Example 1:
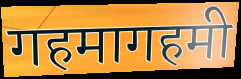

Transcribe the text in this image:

गहमागहमी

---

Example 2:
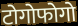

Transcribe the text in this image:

टोगोफोगो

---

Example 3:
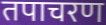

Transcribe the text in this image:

तपाचरण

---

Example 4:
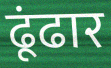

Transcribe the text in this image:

ढूंढार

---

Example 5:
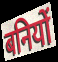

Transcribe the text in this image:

बनियों